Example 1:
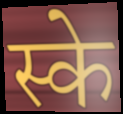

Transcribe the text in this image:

स्के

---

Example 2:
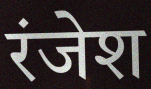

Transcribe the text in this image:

रंजेश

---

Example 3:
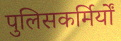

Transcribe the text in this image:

पुलिसकर्मिर्यों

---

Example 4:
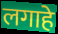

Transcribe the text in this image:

लगाहे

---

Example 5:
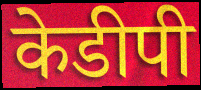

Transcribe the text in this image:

केडीपी